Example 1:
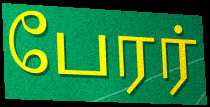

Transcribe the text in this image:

பேரர்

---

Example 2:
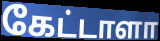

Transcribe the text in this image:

கேட்டாளா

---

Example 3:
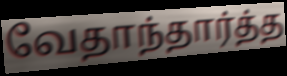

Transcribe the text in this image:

வேதாந்தார்த்த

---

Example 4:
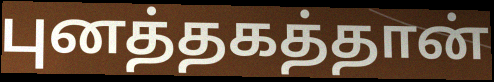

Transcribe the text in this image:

புனத்தகத்தான்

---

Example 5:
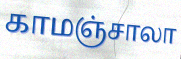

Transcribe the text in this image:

காமஞ்சாலா